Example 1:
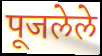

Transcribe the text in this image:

पूजलेले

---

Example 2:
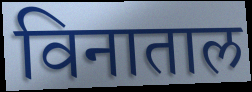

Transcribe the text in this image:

विनाताल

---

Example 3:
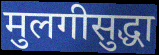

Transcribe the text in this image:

मुलगीसुद्धा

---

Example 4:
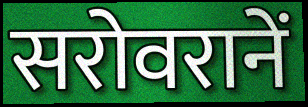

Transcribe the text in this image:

सरोवरानें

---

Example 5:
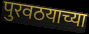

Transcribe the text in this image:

पुरवठयाच्या